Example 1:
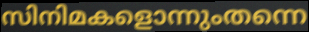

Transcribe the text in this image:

സിനിമകളൊന്നുംതന്നെ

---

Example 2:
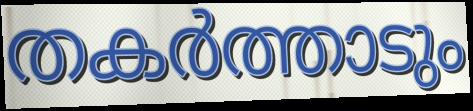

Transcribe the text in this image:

തകർത്താടും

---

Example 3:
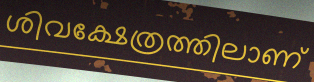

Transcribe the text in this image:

ശിവക്ഷേത്രത്തിലാണ്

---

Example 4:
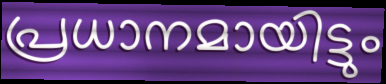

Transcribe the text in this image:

പ്രധാനമായിട്ടും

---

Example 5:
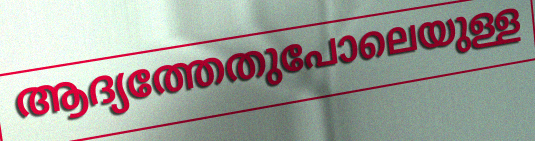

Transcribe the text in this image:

ആദ്യത്തേതുപോലെയുള്ള